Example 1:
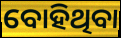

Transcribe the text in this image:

ବୋହିଥିବା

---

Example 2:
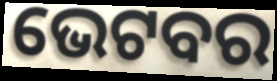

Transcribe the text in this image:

ଭେଟବର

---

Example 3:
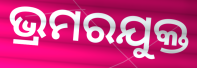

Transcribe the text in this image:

ଭ୍ରମରଯୁକ୍ତ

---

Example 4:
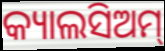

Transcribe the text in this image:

କ୍ୟାଲସିଅମ୍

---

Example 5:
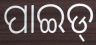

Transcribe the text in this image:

ପାଇଡ୍